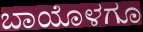
ಬಾಯೊಳಗೂ